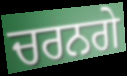
ਚਰਨਗੇ